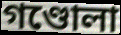
গণ্ডোলা